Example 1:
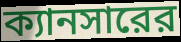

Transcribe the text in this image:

ক্যানসারের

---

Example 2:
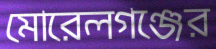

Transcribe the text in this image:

মোরেলগঞ্জের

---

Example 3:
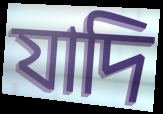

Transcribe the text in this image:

যাদি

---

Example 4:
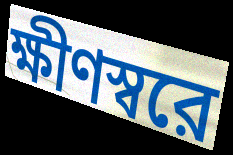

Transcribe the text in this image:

ক্ষীণস্বরে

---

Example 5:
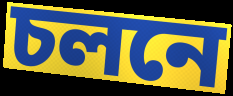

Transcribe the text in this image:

চলনে